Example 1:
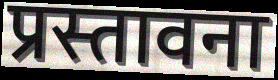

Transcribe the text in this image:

प्रस्तावना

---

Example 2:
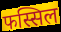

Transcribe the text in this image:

फस्सिल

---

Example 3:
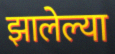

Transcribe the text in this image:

झालेल्या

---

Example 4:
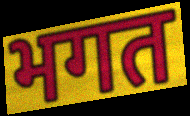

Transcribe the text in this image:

भगत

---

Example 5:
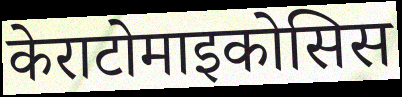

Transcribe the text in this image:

केराटोमाइकोसिस